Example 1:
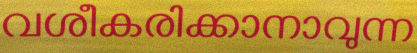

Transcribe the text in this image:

വശീകരിക്കാനാവുന്ന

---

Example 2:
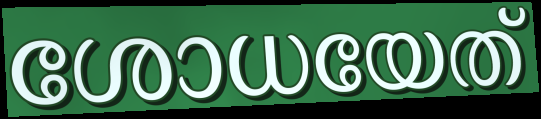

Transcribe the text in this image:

ശോധയേത്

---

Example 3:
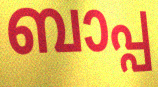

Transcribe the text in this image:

ബാപ്പ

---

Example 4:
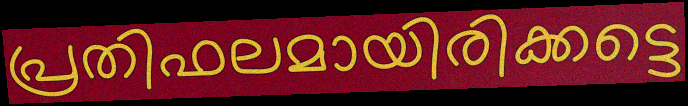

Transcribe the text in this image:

പ്രതിഫലമായിരിക്കട്ടെ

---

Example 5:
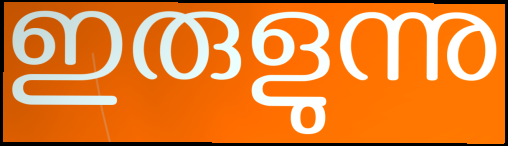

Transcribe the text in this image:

ഇരുളുന്നു